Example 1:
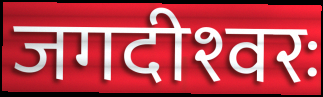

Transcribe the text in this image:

जगदीश्वरः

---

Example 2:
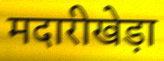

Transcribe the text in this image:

मदारीखेड़ा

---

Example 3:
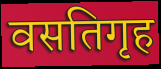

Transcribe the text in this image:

वसतिगृह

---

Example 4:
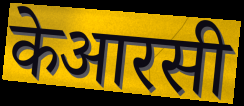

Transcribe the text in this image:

केआरसी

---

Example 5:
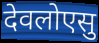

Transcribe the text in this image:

देवलोएसु